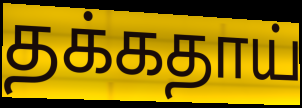
தக்கதாய்